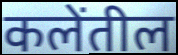
कलेंतील